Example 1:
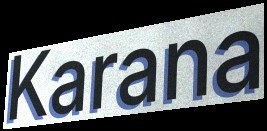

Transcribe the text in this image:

Karana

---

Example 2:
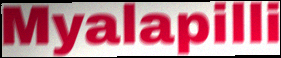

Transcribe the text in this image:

Myalapilli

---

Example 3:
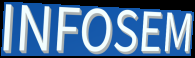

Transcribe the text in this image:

INFOSEM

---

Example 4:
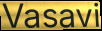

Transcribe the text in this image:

Vasavi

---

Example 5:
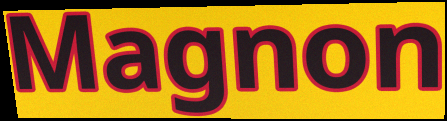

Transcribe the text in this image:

Magnon